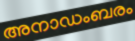
അനാഡംബരം